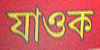
যাওক